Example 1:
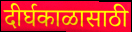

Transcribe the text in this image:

दीर्घकाळासाठी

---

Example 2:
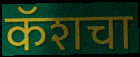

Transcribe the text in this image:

कॅशचा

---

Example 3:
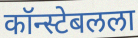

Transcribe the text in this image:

कॉन्स्टेबलला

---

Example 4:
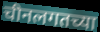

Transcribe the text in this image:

चीनलगतच्या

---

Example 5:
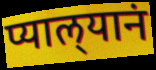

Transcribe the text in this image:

प्याल्यानं